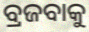
ବ୍ରଜବାକୁ